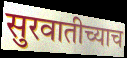
सुरवातीच्याच